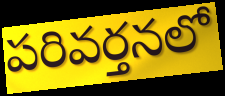
పరివర్తనలో